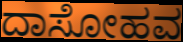
ದಾಸೋಹವ